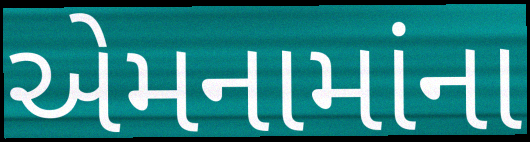
એમનામાંના